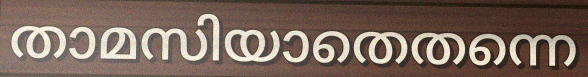
താമസിയാതെതന്നെ